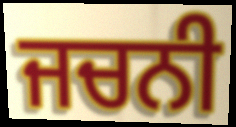
ਜਚਨੀ